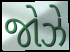
જોઝે